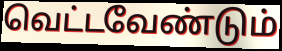
வெட்டவேண்டும்